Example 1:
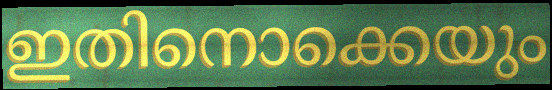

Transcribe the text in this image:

ഇതിനൊക്കെയും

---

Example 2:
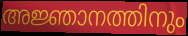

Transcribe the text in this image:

അജ്ഞാനത്തിനും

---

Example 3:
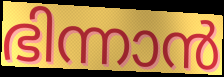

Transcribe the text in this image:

ഭിന്നാൻ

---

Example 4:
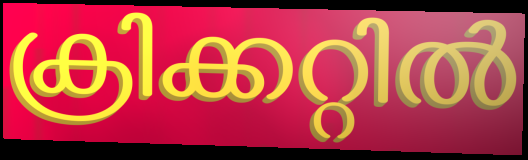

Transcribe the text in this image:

ക്രിക്കറ്റിൽ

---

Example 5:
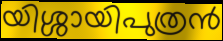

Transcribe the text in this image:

യിശ്ശായിപുത്രൻ